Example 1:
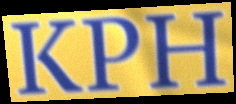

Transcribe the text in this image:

KPH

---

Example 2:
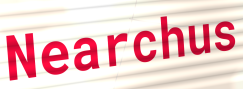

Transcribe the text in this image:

Nearchus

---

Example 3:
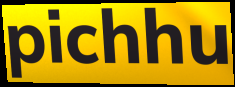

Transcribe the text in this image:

pichhu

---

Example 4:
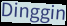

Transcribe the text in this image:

Dinggin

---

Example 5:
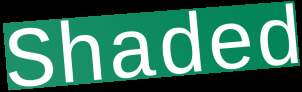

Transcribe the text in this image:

Shaded